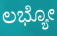
ಲಭ್ಯೋ